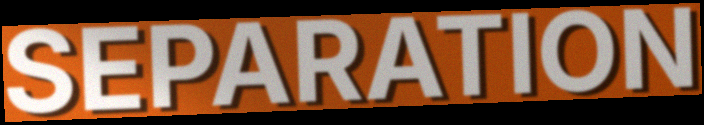
SEPARATION